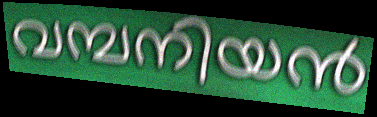
വമ്പനിയൻ